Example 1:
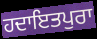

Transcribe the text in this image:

ਹਦਾਇਤਪੁਰਾ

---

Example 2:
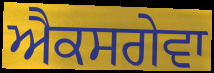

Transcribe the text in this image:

ਐਕਸਗੇਵਾ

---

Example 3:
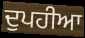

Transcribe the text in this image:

ਦੁਪਹੀਆ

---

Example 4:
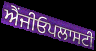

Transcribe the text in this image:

ਐਂਜੀਓਪਲਾਸਟੀ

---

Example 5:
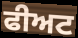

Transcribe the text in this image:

ਫੀਅਟ